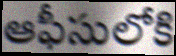
ఆఫీసులోకి